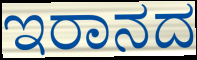
ಇರಾನದ